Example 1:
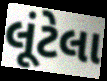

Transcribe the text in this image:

લૂંટેલા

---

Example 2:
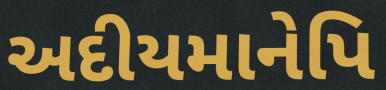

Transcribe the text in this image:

અદીયમાનેપિ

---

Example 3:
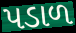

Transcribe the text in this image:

પડાળ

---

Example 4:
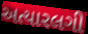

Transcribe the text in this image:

અત્યારલગી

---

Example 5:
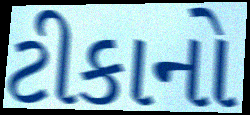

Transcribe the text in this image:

ટીકાનો